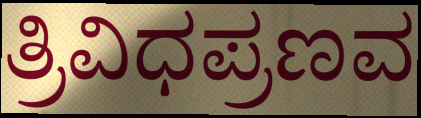
ತ್ರಿವಿಧಪ್ರಣವ